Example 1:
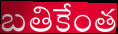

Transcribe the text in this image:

బతికేంత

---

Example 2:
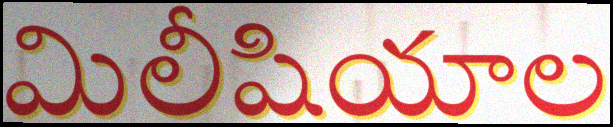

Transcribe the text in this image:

మిలీషియాల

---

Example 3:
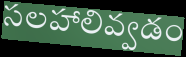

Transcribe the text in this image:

సలహాలివ్వడం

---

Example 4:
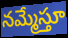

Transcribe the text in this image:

నమ్మేస్తూ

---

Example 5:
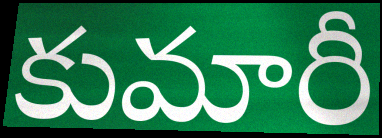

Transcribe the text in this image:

కుమారీ